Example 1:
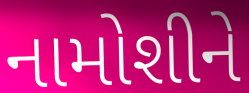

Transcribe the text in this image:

નામોશીને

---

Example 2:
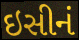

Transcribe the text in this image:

ઇસીનં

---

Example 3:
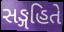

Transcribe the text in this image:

સઙ્ગહિતે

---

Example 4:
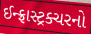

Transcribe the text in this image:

ઈન્ફ્રાસ્ટ્રક્ચરનો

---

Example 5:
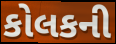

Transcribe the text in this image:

કોલકની